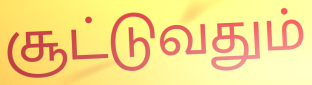
சூட்டுவதும்